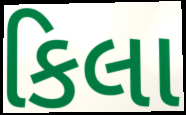
કિલા